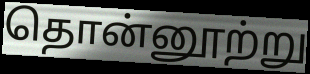
தொன்னூற்று